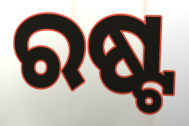
ରଷ୍ଟ